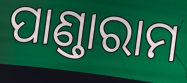
ପାଣ୍ଡାରାମ